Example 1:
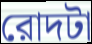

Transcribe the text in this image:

রোদটা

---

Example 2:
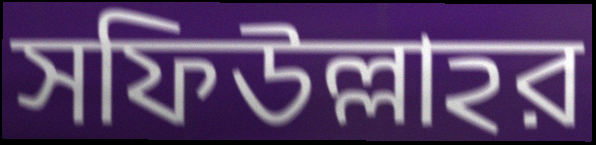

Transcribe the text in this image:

সফিউল্লাহর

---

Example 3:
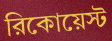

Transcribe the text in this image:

রিকোয়েস্ট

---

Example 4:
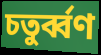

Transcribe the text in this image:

চতুর্ব্বণ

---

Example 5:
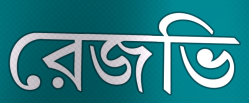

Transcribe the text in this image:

রেজভি